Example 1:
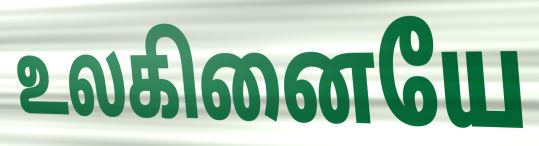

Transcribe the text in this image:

உலகினையே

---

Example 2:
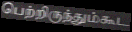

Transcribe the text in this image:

பெற்றிருந்தும்கூட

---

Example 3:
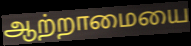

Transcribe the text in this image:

ஆற்றாமையை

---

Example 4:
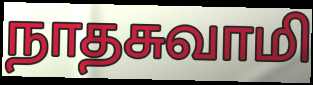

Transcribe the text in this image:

நாதசுவாமி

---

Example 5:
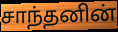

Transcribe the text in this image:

சாந்தனின்